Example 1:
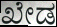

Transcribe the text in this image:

ಖೇಡ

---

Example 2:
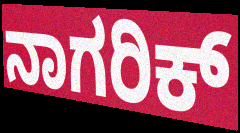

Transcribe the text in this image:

ನಾಗರಿಕ್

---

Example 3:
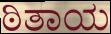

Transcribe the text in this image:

ಠಿತಾಯ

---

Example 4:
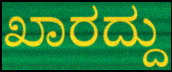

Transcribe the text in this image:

ಖಾರದ್ದು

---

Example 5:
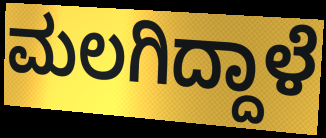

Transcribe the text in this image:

ಮಲಗಿದ್ದಾಳೆ